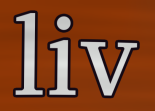
liv